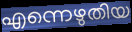
എന്നെഴുതിയ